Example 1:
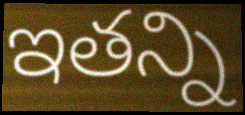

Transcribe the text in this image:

ఇతన్ని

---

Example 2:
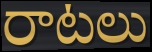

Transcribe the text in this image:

రాటలు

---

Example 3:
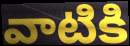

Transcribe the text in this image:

వాటికి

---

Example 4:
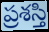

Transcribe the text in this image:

ప్రశస్తి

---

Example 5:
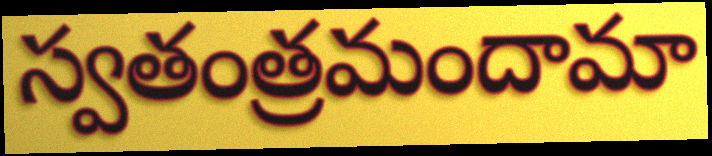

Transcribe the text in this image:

స్వతంత్రమందామా